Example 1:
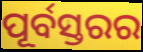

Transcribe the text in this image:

ପୂର୍ବସ୍ତରର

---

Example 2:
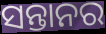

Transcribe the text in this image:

ସନ୍ତାନର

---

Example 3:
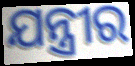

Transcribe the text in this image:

ଯନ୍ତ୍ରୀର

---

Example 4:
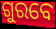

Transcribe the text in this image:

ଗୁରବେ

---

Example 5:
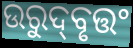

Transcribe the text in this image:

ଉରୁଦ୍‌ବୃତ୍ତଂ